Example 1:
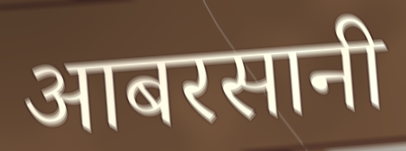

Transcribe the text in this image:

आबरसानी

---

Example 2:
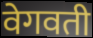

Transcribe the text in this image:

वेगवती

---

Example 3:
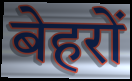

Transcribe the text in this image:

बेहरों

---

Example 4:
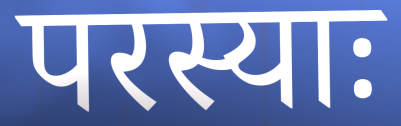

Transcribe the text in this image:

परस्याः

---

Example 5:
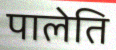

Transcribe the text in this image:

पालेति